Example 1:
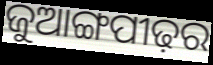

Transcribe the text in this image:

ଜୁଆଙ୍ଗପୀଢ଼ର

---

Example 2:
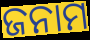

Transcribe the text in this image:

ଜନାମ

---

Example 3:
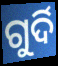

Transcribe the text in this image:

ଗୁର୍ଦି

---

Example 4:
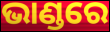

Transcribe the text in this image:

ଭାଣ୍ଡରେ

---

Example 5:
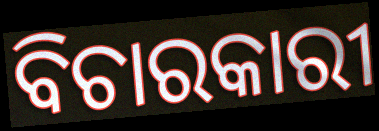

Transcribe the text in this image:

ବିଚାରକାରୀ